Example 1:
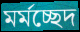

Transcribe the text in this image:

মর্মচ্ছেদ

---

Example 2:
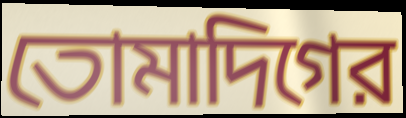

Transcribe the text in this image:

তোমাদিগের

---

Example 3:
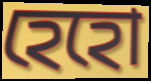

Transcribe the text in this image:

হেহো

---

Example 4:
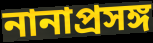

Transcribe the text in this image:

নানাপ্রসঙ্গ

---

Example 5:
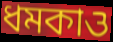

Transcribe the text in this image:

ধমকাও